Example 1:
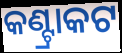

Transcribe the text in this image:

କଣ୍ଟ୍ରାକଟ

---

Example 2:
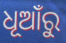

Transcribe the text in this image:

ଧୂଆଁରୁ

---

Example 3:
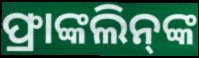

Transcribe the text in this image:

ଫ୍ରାଙ୍କଲିନ୍‌ଙ୍କ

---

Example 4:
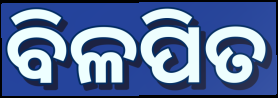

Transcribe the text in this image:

ବିଳପିତ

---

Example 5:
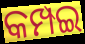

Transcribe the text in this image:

କମ୍ପଇ